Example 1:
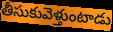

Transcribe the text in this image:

తీసుకువెళ్తుంటాడు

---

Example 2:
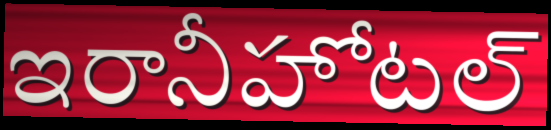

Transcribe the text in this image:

ఇరానీహోటల్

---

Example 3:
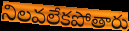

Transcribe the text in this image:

నిలవలేకపోతారు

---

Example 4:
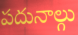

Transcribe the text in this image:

పదునాల్గు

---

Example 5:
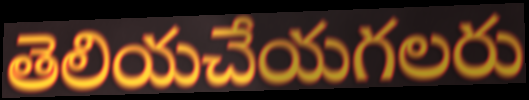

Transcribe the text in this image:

తెలియచేయగలరు